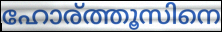
ഹോര്ത്തൂസിനെ